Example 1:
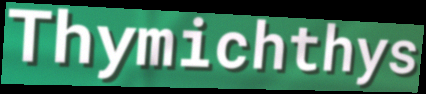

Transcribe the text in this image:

Thymichthys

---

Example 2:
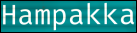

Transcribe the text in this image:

Hampakka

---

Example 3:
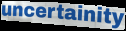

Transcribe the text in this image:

uncertainity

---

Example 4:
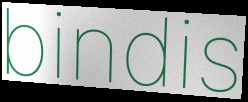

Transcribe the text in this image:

bindis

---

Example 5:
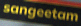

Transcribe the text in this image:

sangeetam